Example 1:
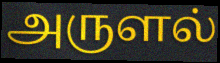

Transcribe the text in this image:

அருளல்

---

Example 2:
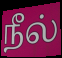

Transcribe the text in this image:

நீல்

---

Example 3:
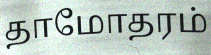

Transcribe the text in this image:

தாமோதரம்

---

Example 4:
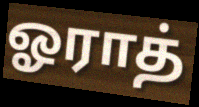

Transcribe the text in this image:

ஓராத்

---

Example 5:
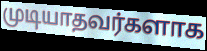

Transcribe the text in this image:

முடியாதவர்களாக